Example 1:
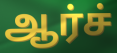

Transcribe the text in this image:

ஆர்ச்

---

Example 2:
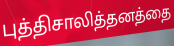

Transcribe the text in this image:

புத்திசாலித்தனத்தை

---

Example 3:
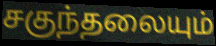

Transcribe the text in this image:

சகுந்தலையும்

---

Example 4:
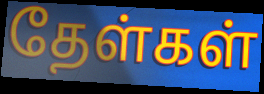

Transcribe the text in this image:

தேள்கள்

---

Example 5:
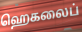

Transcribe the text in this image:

ஹெகலைப்